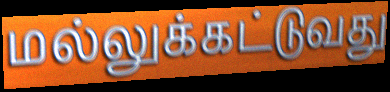
மல்லுக்கட்டுவது